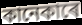
কানেকাৰে